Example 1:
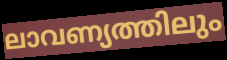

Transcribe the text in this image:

ലാവണ്യത്തിലും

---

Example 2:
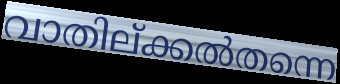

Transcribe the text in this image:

വാതില്ക്കൽതന്നെ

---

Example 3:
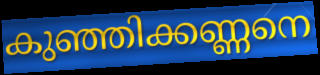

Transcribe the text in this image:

കുഞ്ഞിക്കണ്ണനെ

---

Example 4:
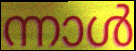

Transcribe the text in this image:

ന്നാൾ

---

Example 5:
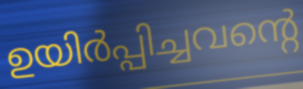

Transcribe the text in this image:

ഉയിർപ്പിച്ചവന്റെ